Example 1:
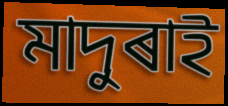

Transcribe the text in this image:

মাদুৰাই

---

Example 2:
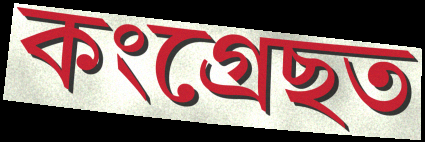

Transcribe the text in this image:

কংগ্ৰেছত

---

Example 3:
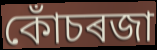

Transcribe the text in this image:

কোঁচৰজা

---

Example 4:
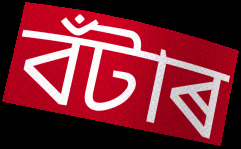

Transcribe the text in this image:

বঁটাৰ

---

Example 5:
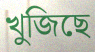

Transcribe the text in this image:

খুজিছে